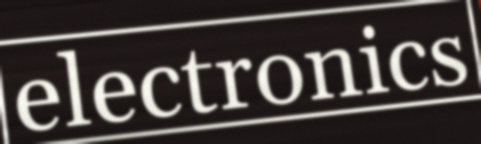
electronics